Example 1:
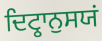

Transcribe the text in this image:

ਦਿਟ੍ਠਾਨੁਸਯਂ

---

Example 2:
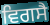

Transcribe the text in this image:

ਵਿਗਸੈ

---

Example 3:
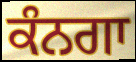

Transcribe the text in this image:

ਕੰਨਗਾ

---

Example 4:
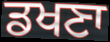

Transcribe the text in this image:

ਡਖਣਾ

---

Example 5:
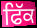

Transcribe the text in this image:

ਫਿੱਕ